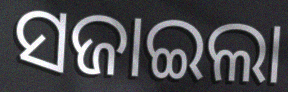
ସଜାଇଲା